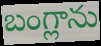
బంగ్లాను